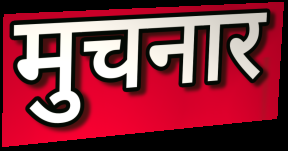
मुचनार